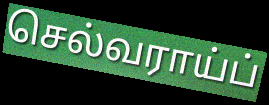
செல்வராய்ப்